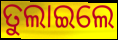
ତୁଲାଇଲେ